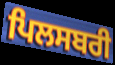
ਪਿਲਸਬਰੀ